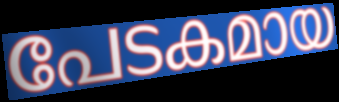
പേടകമായ